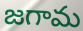
జగామ